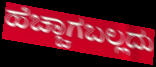
ಹೆಚ್ಚಾಗಬಲ್ಲದು